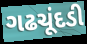
ગઢચૂંદડી